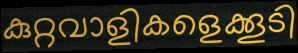
കുറ്റവാളികളെക്കൂടി